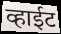
व्हाईट